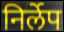
निर्लेप